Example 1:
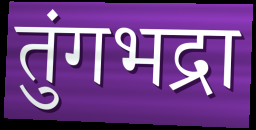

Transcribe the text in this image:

तुंगभद्रा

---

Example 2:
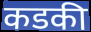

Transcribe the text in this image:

कडकी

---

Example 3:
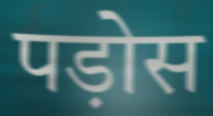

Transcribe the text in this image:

पड़ोस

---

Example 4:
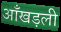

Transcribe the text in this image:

आँखड़ली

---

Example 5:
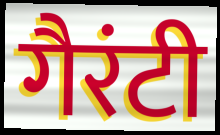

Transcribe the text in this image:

गैरंटी